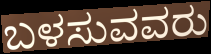
ಬಳಸುವವರು